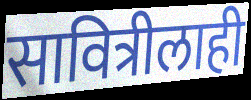
सावित्रीलाही